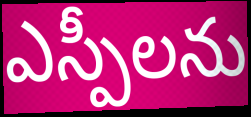
ఎస్పీలను